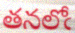
తనలోఁ